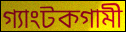
গ্যাংটকগামী